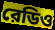
রেডিও